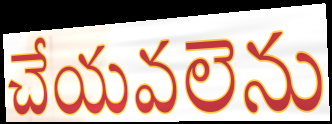
చేయవలెను